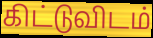
கிட்டுவிடம்